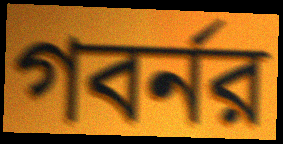
গবর্নর